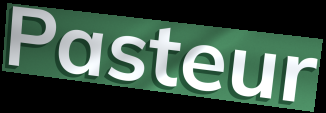
Pasteur